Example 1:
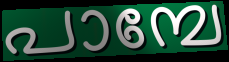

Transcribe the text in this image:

പാമ്പേ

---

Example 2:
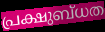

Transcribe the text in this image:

പ്രക്ഷുബ്ധത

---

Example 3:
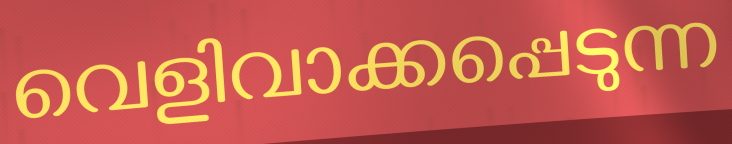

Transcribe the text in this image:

വെളിവാക്കപ്പെടുന്ന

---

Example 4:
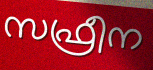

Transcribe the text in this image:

സഫ്രീന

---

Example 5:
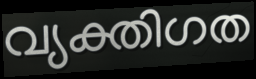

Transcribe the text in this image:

വ്യക്തിഗത